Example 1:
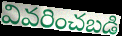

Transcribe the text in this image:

వివరించబడి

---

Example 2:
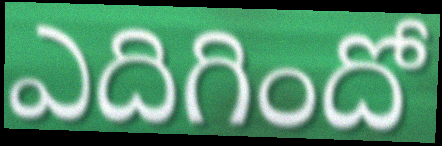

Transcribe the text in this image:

ఎదిగిందో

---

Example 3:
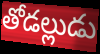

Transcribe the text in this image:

తోడల్లుడు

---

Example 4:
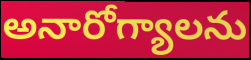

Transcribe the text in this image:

అనారోగ్యాలను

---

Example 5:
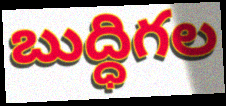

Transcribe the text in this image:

బుద్ధిగల